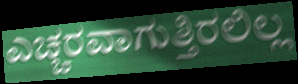
ಎಚ್ಚರವಾಗುತ್ತಿರಲಿಲ್ಲ